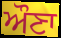
ਔਣਾ